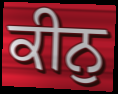
ਕੀਨੁ